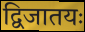
द्विजातयः